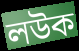
লউক